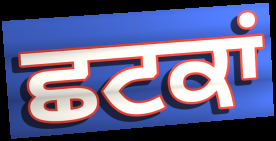
ਛਟਕਾਂ